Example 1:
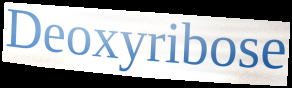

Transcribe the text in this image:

Deoxyribose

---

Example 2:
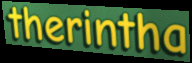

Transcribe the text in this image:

therintha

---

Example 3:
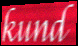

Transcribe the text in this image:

kund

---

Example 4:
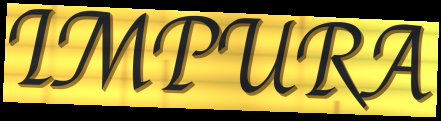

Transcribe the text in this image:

IMPURA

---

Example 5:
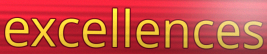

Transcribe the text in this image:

excellences